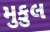
મુકુલ